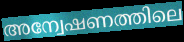
അന്വേഷണത്തിലെ